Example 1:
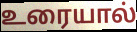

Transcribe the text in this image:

உரையால்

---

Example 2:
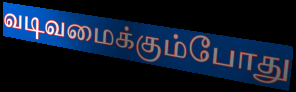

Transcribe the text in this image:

வடிவமைக்கும்போது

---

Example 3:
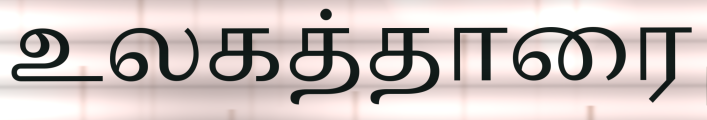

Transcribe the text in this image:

உலகத்தாரை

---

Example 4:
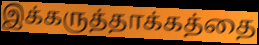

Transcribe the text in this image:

இக்கருத்தாக்கத்தை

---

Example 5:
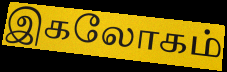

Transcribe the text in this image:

இகலோகம்